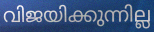
വിജയിക്കുന്നില്ല